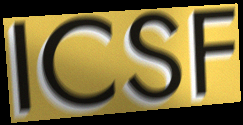
ICSF